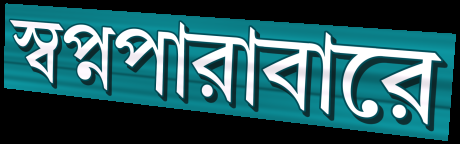
স্বপ্নপারাবারে